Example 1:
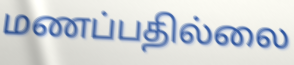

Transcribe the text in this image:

மணப்பதில்லை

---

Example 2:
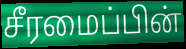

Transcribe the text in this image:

சீரமைப்பின்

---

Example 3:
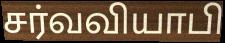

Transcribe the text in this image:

சர்வவியாபி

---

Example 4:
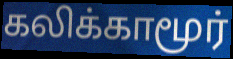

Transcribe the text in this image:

கலிக்காமூர்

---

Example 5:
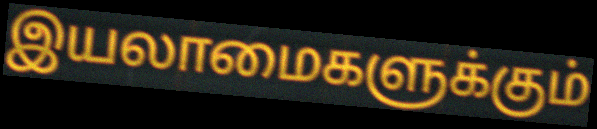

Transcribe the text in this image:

இயலாமைகளுக்கும்